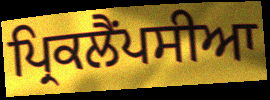
ਪ੍ਰਿਕਲੈਂਪਸੀਆ